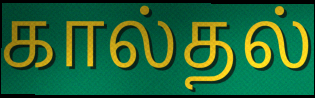
கால்தல்